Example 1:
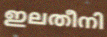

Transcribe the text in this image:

ഇലതീനി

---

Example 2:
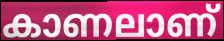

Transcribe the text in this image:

കാണലാണ്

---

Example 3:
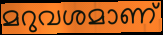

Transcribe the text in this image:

മറുവശമാണ്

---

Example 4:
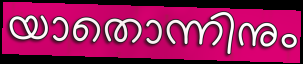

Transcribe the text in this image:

യാതൊന്നിനും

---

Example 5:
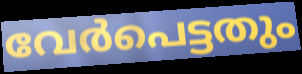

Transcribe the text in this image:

വേർപെട്ടതും